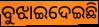
ବୁଝାଇଦେଇଛି